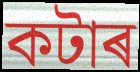
কটাৰ